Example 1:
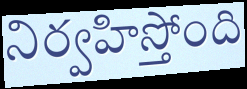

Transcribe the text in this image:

నిర్వహిస్తోంది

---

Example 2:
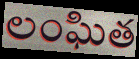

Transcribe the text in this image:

లంఘిత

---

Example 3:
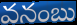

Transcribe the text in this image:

వనంబు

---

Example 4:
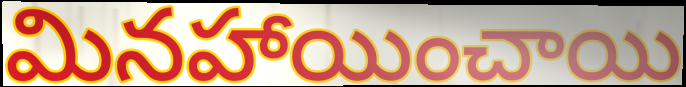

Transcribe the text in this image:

మినహాయించాయి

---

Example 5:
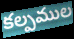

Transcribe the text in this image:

కల్పముల